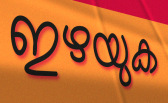
ഇഴയുക